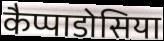
कैप्पाडोसिया